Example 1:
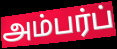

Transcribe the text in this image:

அம்பர்ப்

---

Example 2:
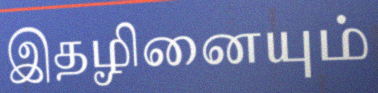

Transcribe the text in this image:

இதழினையும்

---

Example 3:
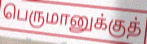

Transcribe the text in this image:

பெருமானுக்குத்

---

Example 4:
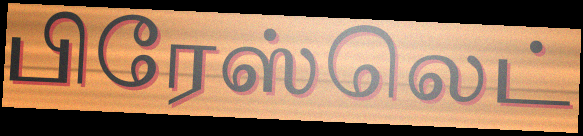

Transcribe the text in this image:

பிரேஸ்லெட்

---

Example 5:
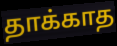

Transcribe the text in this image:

தாக்காத